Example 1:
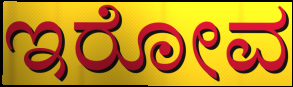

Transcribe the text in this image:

ಇರೋವ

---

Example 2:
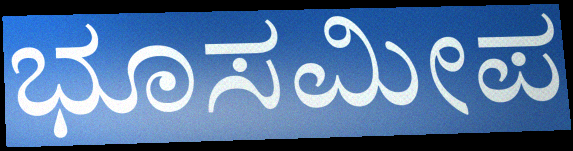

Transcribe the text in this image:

ಭೂಸಮೀಪ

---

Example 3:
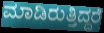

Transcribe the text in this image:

ಮಾಡಿರುತ್ತಿದ್ದರೆ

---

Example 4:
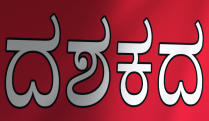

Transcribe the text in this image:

ದಶಕದ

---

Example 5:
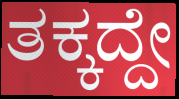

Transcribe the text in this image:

ತಕ್ಕದ್ದೇ